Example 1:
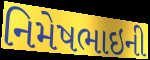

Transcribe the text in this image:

નિમેષભાઇની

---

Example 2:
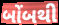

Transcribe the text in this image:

બોંબથી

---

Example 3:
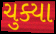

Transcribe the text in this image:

ચુક્યા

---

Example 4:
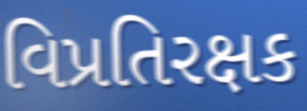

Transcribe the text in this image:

વિપ્રતિરક્ષક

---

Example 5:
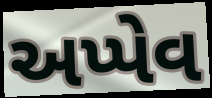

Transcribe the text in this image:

અપ્પેવ